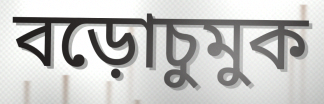
বড়োচুমুক